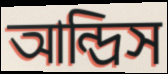
আন্দ্রিস